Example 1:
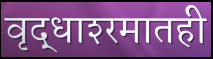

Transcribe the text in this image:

वृद्धाश्रमातही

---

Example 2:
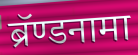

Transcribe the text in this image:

ब्रॅण्डनामा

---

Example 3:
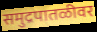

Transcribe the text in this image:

समुद्रपातळीवर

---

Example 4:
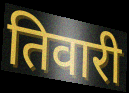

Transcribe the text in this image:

तिवारी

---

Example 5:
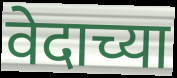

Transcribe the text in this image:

वेदाच्या